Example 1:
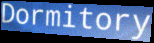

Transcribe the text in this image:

Dormitory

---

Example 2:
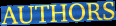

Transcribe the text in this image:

AUTHORS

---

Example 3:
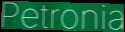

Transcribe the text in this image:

Petronia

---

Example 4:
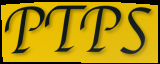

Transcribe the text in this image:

PTPS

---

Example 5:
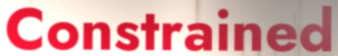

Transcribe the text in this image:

Constrained